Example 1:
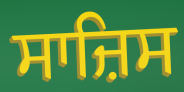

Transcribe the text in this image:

ਸਾਜ਼ਿਸ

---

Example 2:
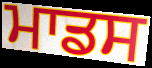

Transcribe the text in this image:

ਮਾਡਸ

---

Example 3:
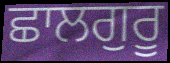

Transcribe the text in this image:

ਛਾਲਗੁਰੂ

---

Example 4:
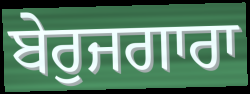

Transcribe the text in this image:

ਬੇਰੁਜਗਾਰਾ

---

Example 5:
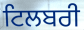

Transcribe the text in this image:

ਟਿਲਬਰੀ